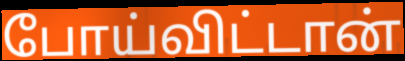
போய்விட்டான்